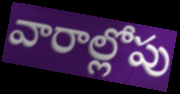
వారాల్లోపు